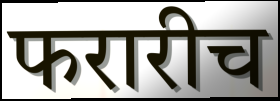
फरारीच